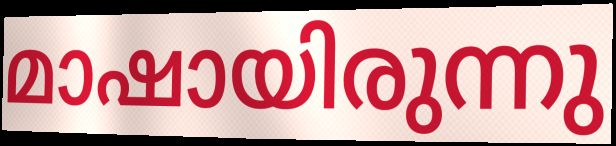
മാഷായിരുന്നു